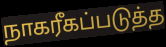
நாகரீகப்படுத்த